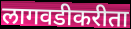
लागवडीकरीता